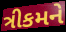
ત્રીકમને